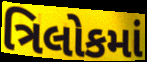
ત્રિલોકમાં